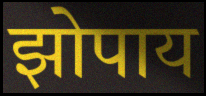
झोपाय